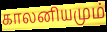
காலனியமும்